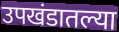
उपखंडातल्या